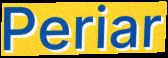
Periar